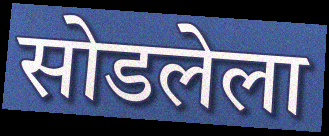
सोडलेला